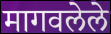
मागवलेले